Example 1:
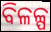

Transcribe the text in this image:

ବିଳଳ୍ପ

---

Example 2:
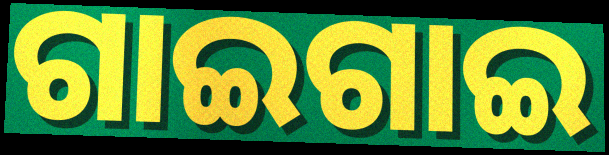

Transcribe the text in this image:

ଗାଇଗାଇ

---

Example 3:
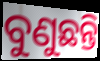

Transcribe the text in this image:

ବୁଣୁଛନ୍ତି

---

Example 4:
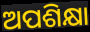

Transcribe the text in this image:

ଅପଶିକ୍ଷା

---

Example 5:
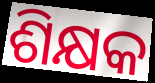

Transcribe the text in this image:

ଶିକ୍ଷକ